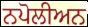
ਨਪੋਲੀਅਨ